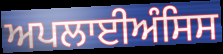
ਅਪਲਾਈਅੰਸਿਸ